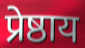
प्रेष्ठाय